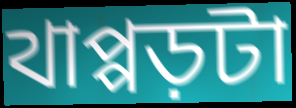
থাপ্পড়টা